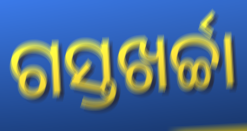
ଗସ୍ତଖର୍ଚ୍ଚା